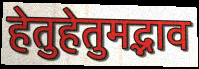
हेतुहेतुमद्भाव